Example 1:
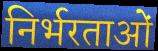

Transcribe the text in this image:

निर्भरताओं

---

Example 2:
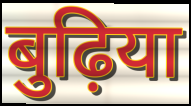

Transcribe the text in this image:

बुढ़िया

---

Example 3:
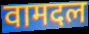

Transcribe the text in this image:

वामदल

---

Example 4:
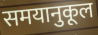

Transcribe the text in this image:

समयानुकूल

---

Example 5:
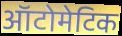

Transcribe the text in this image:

ऑटोमेटिक